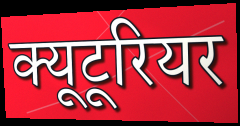
क्यूटूरियर